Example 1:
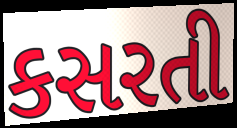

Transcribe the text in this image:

કસરતી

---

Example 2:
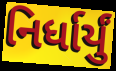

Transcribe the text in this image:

નિર્ધાર્યું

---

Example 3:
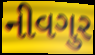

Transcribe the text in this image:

નીવગુર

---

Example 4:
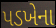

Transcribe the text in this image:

પડખેના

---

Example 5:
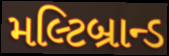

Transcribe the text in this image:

મલ્ટિબ્રાન્ડ